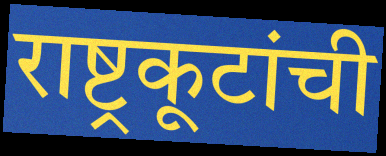
राष्ट्रकूटांची